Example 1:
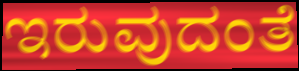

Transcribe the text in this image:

ಇರುವುದಂತೆ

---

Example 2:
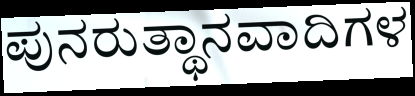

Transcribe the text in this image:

ಪುನರುತ್ಥಾನವಾದಿಗಳ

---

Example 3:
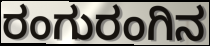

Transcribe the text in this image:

ರಂಗುರಂಗಿನ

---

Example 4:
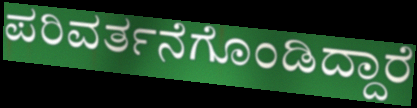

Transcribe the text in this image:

ಪರಿವರ್ತನೆಗೊಂಡಿದ್ದಾರೆ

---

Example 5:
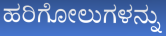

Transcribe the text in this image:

ಹರಿಗೋಲುಗಳನ್ನು